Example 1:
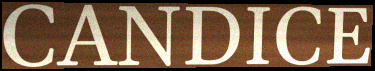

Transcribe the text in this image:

CANDICE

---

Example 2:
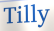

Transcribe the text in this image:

Tilly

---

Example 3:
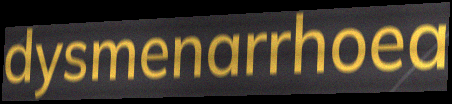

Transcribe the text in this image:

dysmenarrhoea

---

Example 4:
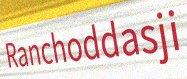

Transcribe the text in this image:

Ranchoddasji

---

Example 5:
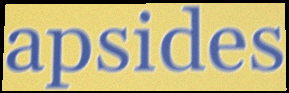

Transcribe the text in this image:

apsides